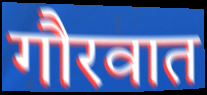
गौरवात